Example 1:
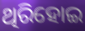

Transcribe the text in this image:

ଥିରିହୋଇ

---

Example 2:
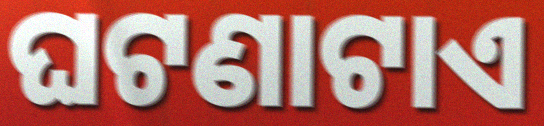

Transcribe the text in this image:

ଘଟଣାଟାଏ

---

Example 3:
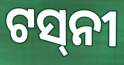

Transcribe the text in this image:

ଟସ୍‌ନୀ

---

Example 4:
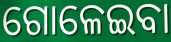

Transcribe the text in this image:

ଗୋଳେଇବା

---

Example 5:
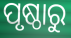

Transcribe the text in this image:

ପୃଷ୍ଠାରୁ